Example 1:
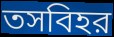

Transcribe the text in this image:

তসবিহর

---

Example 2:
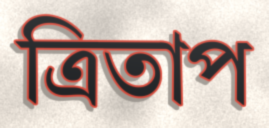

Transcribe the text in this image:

ত্রিতাপ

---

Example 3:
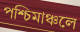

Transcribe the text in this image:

পশ্চিমাঞ্চলে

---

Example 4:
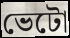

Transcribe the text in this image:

ভেটো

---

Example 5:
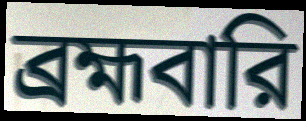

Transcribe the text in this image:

ব্রহ্মবারি